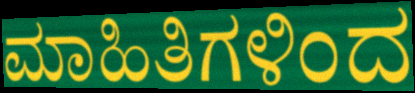
ಮಾಹಿತಿಗಳಿಂದ